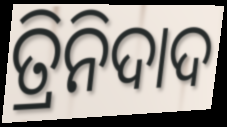
ତ୍ରିନିଦାଦ